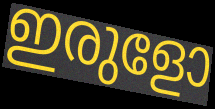
ഇരുളോ